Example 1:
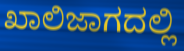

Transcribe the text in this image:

ಖಾಲಿಜಾಗದಲ್ಲಿ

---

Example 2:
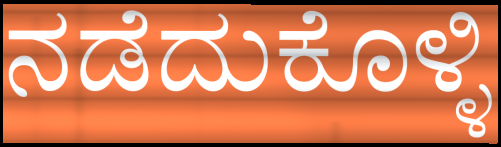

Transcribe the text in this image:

ನಡೆದುಕೊಳ್ಳಿ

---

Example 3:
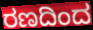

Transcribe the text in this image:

ರಣದಿಂದ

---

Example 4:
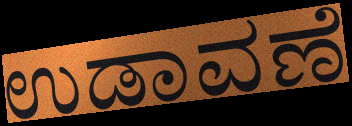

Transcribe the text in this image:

ಉಡಾವಣೆ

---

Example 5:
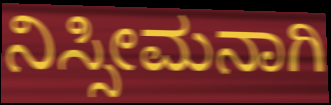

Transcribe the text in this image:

ನಿಸ್ಸೀಮನಾಗಿ